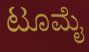
ಟೂಮೈ